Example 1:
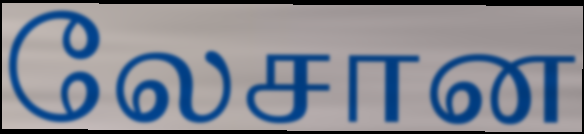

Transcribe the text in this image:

லேசான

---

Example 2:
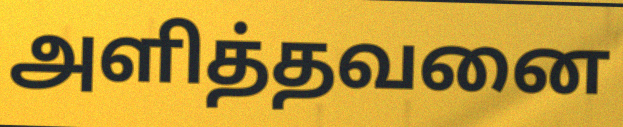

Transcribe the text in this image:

அளித்தவனை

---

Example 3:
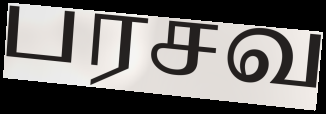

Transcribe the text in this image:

பரசவ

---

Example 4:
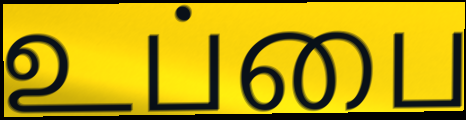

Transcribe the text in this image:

உப்பை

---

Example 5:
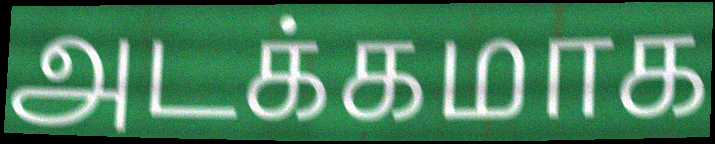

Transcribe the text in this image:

அடக்கமாக